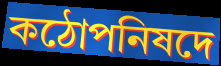
কঠোপনিষদে